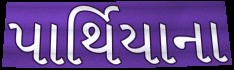
પાર્થિયાના